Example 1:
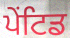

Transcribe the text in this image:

ਪੇਂਟਿਡ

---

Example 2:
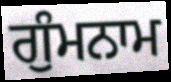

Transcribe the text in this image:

ਗੁੰਮਨਾਮ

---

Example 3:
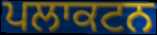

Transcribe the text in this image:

ਪਲਾਕਟਨ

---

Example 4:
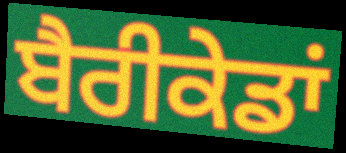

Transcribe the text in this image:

ਬੈਰੀਕੇਡਾਂ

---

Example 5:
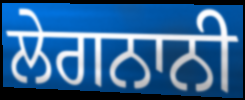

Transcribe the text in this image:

ਲੇਗਨਾਨੀ